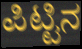
ಪಿಟ್ಟಿನ